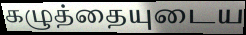
கழுத்தையுடைய